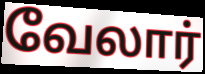
வேலார்